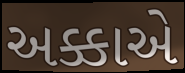
અક્કાએ